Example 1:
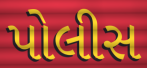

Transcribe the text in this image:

પોલીસ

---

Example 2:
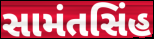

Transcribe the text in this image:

સામંતસિંહ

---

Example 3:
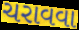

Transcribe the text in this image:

ચરાવવા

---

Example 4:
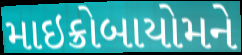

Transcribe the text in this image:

માઇક્રોબાયોમને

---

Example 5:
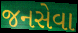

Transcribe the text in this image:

જનસેવા